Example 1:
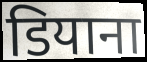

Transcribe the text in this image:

डियाना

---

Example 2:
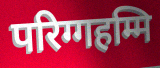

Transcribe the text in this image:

परिग्गहम्मि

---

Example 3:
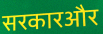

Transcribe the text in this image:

सरकारऔर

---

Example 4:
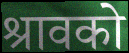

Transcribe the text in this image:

श्रावको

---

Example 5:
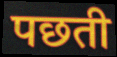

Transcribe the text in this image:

पछती